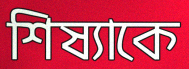
শিষ্যাকে